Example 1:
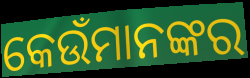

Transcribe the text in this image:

କେଉଁମାନଙ୍କର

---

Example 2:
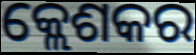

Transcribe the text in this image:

କ୍ଲେଶକର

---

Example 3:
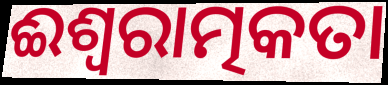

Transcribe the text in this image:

ଈଶ୍ଵରାତ୍ମକତା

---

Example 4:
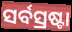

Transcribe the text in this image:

ସର୍ବସ୍ରଷ୍ଟା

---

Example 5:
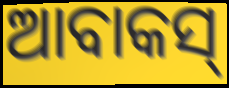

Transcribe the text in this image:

ଆବାକସ୍